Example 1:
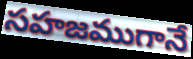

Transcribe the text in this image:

సహజముగానే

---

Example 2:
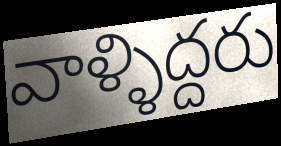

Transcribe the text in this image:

వాళ్ళిద్దరు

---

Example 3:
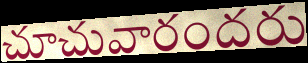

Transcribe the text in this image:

చూచువారందరు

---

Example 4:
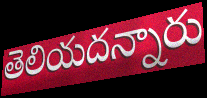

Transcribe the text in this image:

తెలియదన్నారు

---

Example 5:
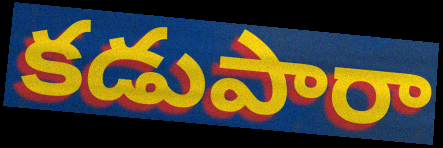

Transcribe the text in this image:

కడుపారా